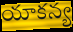
యాకన్య